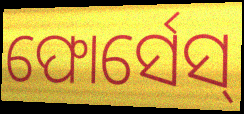
ଫୋର୍ସେସ୍